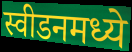
स्वीडनमध्ये